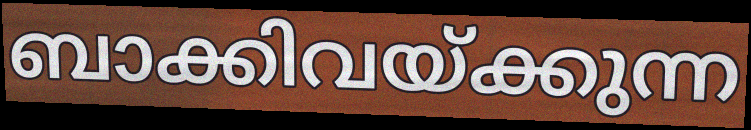
ബാക്കിവയ്ക്കുന്ന